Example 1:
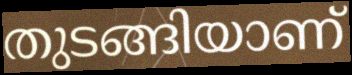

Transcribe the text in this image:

തുടങ്ങിയാണ്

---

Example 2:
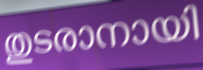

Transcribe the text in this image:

തുടരാനായി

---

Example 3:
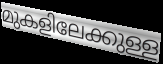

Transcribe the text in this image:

മുകളിലേക്കുള്ള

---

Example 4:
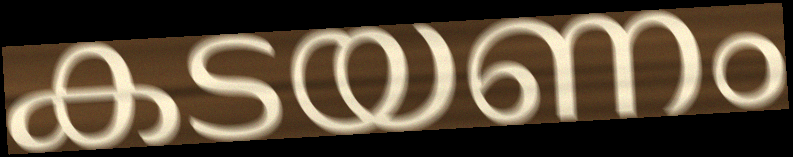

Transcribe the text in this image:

കടയണം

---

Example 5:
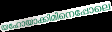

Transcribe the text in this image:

യഹോയാക്കിമിനെപ്പോലെ